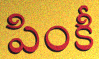
పింకీ